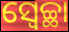
ସ୍ବେଚ୍ଛା